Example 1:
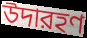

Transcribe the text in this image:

উদারহণ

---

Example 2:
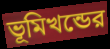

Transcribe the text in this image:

ভূমিখন্ডের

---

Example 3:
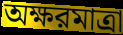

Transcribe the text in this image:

অক্ষরমাত্রা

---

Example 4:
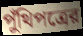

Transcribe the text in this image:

পুঁথিপত্রের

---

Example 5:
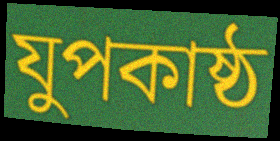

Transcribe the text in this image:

যুপকাষ্ঠ